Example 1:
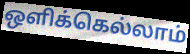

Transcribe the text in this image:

ஒளிக்கெல்லாம்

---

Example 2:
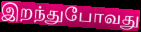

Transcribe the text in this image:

இறந்துபோவது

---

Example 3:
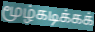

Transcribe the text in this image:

மூழ்கடிக்கக்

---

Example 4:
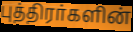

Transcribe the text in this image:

புத்திரர்களின்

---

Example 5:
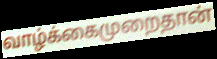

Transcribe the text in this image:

வாழ்க்கைமுறைதான்